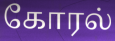
கோரல்